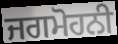
ਜਗਮੋਹਨੀ